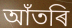
আঁতৰি